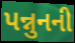
પન્નુનની